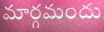
మార్గమందు